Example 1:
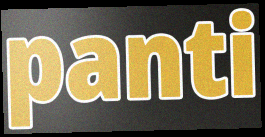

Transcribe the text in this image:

panti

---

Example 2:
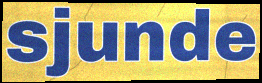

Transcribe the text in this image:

sjunde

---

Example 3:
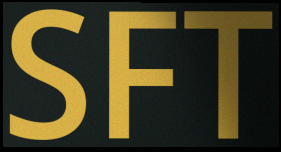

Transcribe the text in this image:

SFT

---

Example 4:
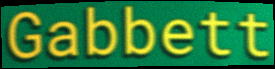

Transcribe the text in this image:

Gabbett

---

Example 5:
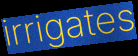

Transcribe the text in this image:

irrigates